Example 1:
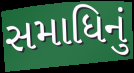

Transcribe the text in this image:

સમાધિનું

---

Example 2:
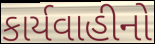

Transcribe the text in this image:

કાર્યવાહીનો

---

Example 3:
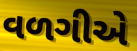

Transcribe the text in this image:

વળગીએ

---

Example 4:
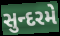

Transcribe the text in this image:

સુન્દરમે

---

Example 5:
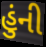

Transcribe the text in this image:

હુંની